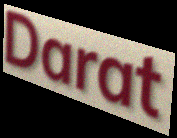
Darat